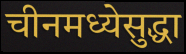
चीनमध्येसुद्धा